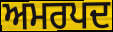
ਅਮਰਪਦ